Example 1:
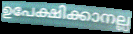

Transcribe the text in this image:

ഉപേക്ഷിക്കാനല്ല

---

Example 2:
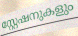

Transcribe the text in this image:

സ്റ്റേഷനുകളും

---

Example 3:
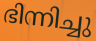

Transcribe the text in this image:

ഭിന്നിച്ചു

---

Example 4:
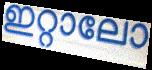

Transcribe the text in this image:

ഇറ്റാലോ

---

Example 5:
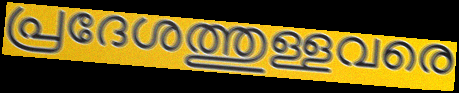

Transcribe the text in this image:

പ്രദേശത്തുള്ളവരെ